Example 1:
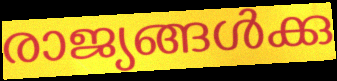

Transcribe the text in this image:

രാജ്യങ്ങൾക്കു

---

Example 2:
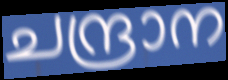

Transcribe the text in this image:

ചന്ദ്രാന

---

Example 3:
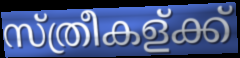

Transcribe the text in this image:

സ്ത്രീകള്ക്ക്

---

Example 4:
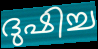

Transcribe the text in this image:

ദുഷിച്ച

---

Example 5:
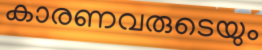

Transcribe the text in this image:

കാരണവരുടെയും